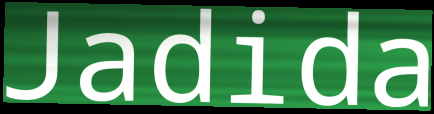
Jadida